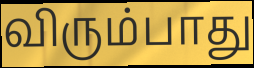
விரும்பாது